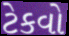
ટેકવો